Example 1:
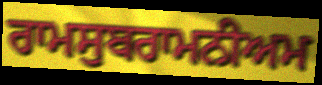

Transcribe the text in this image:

ਰਾਮਸੁਬਰਾਮਨੀਅਮ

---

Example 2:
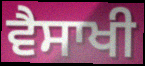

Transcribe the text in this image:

ਵੈਸਾਖੀ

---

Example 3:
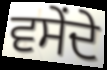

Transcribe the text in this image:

ਵਸੇਂਦੇ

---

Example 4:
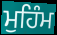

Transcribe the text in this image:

ਮੁਹਿੰਮ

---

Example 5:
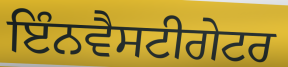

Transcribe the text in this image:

ਇੰਨਵੈਸਟੀਗੇਟਰ